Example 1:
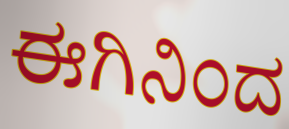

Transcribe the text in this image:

ಈಗಿನಿಂದ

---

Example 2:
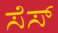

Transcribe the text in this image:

ಸೆಸ್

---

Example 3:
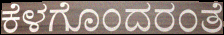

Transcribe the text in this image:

ಕೆಳಗೊಂದರಂತೆ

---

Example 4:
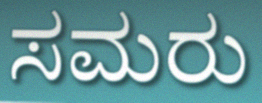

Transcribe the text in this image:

ಸಮರು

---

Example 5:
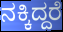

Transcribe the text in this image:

ನಕ್ಕಿದ್ದರೆ